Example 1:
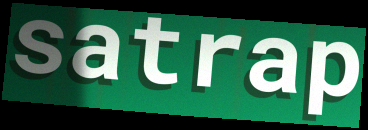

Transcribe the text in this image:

satrap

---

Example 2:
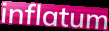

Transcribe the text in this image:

inflatum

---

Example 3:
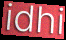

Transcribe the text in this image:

idhi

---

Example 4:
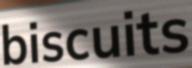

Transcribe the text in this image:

biscuits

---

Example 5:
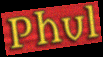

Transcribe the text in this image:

Phul